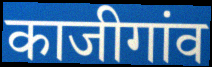
काजीगांव